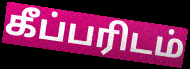
கீப்பரிடம்